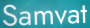
Samvat